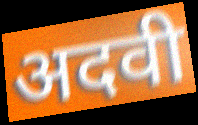
अदवी